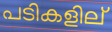
പടികളില്